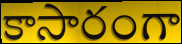
కాసారంగా